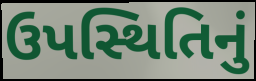
ઉપસ્થિતિનું